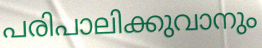
പരിപാലിക്കുവാനും